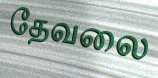
தேவலை